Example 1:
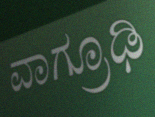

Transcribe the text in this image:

ವಾಗ್ರೂಢಿ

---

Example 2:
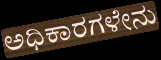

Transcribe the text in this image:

ಅಧಿಕಾರಗಳೇನು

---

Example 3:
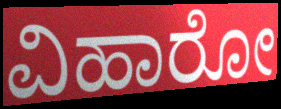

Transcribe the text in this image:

ವಿಹಾರೋ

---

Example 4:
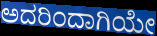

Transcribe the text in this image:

ಅದರಿಂದಾಗಿಯೇ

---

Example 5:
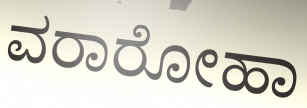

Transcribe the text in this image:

ವರಾರೋಹಾ